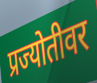
प्रज्योतीवर